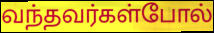
வந்தவர்கள்போல்